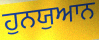
ਹੁਨਯੁਆਨ